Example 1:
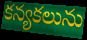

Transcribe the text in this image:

కన్యకలును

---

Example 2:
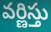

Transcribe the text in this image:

వర్ణిస్తు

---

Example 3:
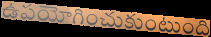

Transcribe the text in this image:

ఉపయోగించుకుంటుంది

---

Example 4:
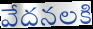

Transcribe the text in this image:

వేదనలకి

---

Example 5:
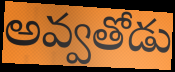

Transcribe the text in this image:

అవ్వతోడు